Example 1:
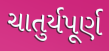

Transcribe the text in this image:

ચાતુર્યપૂર્ણ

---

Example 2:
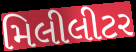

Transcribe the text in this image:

મિલીલીટર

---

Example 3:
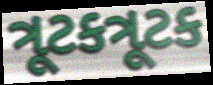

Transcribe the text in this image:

ત્રૂટકત્રૂટક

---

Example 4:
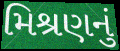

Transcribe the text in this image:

મિશ્રણનું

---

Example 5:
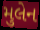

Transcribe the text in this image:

મુલેન